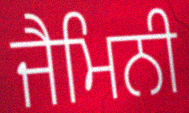
ਜੈਮਿਨੀ